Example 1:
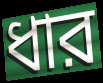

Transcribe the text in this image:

ধার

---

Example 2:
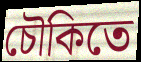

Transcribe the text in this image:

চৌকিতে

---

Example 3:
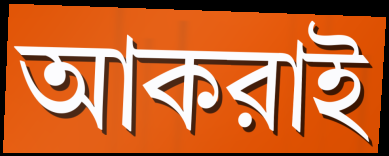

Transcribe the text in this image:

আকরাই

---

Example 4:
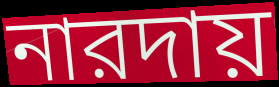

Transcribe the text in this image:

নারদায়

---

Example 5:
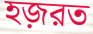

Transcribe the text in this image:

হজ়রত